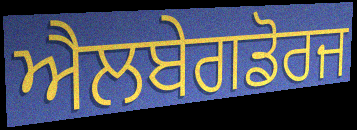
ਐਲਬੇਗਡੋਰਜ